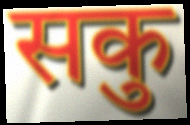
सकु